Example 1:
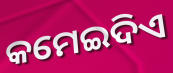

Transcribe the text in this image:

କମେଇଦିଏ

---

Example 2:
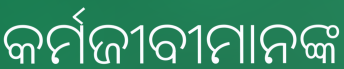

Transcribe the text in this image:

କର୍ମଜୀବୀମାନଙ୍କ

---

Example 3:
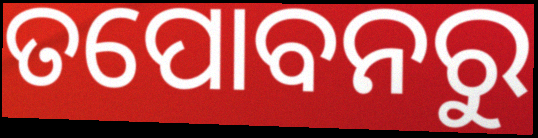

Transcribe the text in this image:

ତପୋବନରୁ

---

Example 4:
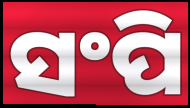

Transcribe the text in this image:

ସଂପି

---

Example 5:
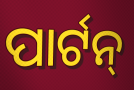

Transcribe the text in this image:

ପାର୍ଟନ୍